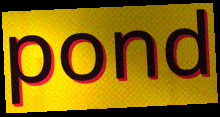
pond